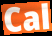
Cal